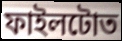
ফাইলটোত